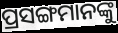
ପ୍ରସଙ୍ଗମାନଙ୍କୁ